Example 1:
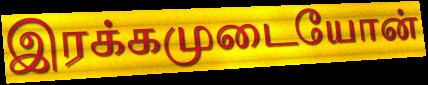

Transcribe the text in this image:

இரக்கமுடையோன்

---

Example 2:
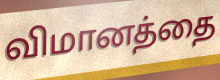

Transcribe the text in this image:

விமானத்தை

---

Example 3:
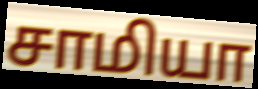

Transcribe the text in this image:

சாமியா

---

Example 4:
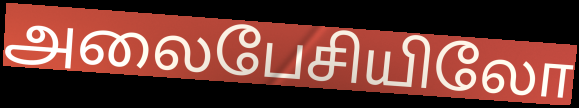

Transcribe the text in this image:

அலைபேசியிலோ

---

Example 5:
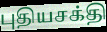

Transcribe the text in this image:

புதியசக்தி